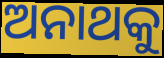
ଅନାଥକୁ